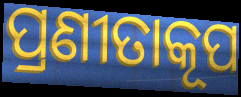
ପ୍ରଣୀତାକୂପ